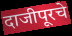
दाजीपूरचे